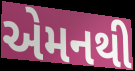
એમનથી